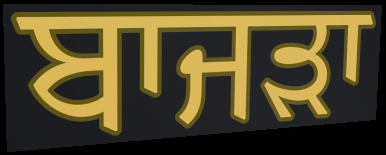
ਬਾਜਡ਼ਾ